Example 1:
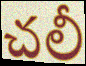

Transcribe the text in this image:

చలీ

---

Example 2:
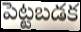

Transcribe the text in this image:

పెట్టబడక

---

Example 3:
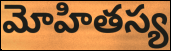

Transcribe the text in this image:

మోహితస్య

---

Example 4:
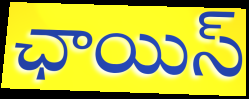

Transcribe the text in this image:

ఛాయిస్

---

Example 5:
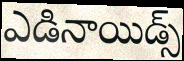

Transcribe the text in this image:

ఎడినాయిడ్స్